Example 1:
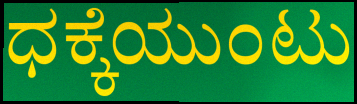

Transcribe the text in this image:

ಧಕ್ಕೆಯುಂಟು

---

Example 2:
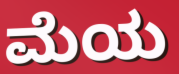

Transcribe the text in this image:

ಮೆಯ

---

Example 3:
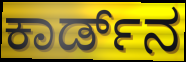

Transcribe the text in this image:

ಕಾರ್ಡ್‌ನ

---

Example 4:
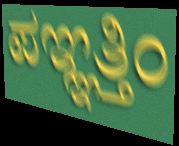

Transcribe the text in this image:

ಪಞ್ಞತ್ತಿಂ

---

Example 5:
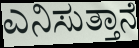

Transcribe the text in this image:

ಎನಿಸುತ್ತಾನೆ